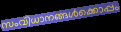
സംവിധാനങ്ങൾക്കൊപ്പം